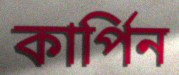
কার্পিন